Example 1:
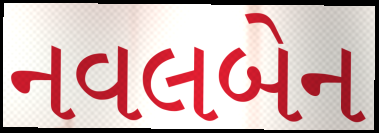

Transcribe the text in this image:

નવલબેન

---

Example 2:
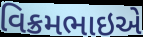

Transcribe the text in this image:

વિક્રમભાઇએ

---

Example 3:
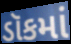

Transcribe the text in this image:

ડૉકમાં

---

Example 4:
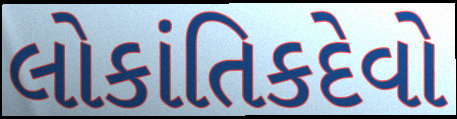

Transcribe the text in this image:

લોકાંતિકદેવો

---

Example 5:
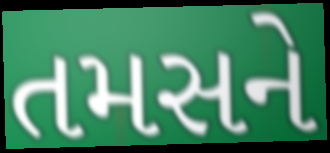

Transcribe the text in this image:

તમસને